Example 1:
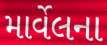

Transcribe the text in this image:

માર્વેલના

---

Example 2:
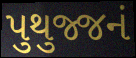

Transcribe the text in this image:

પુથુજ્જનં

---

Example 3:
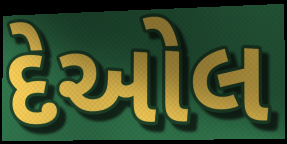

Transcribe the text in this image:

દેઓલ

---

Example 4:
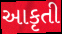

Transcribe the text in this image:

આકૃતી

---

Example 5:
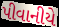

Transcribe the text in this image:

પીવાનીયે